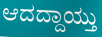
ಆದದ್ದಾಯ್ತು